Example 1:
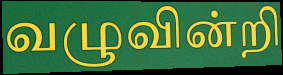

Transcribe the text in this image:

வழுவின்றி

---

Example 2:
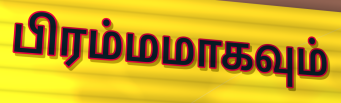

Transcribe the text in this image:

பிரம்மமாகவும்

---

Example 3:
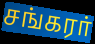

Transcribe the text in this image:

சங்கரர்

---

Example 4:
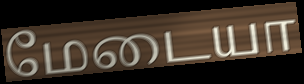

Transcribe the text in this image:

மேடையா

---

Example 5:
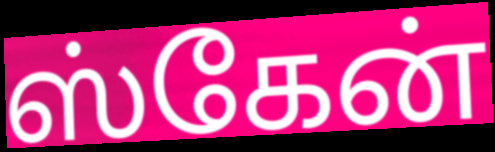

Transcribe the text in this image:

ஸ்கேன்